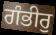
ਗੰਭੀਰੁ